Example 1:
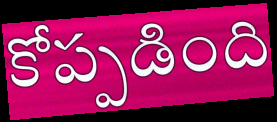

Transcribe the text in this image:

కోప్పడింది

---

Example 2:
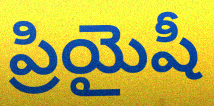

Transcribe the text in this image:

ప్రియైషీ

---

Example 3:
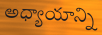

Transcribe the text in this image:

అధ్యాయాన్ని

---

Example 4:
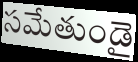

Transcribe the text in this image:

సమేతుండై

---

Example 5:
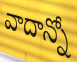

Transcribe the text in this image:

వాదాన్నో